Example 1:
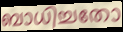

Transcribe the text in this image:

ബാധിച്ചതോ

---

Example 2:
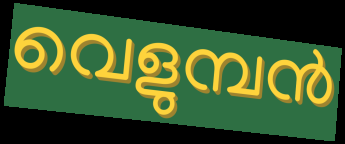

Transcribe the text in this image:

വെളുമ്പൻ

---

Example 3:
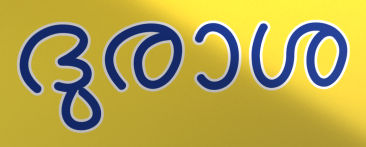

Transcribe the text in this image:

ദുരാശ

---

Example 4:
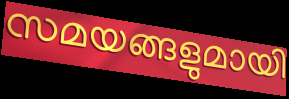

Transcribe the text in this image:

സമയങ്ങളുമായി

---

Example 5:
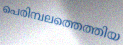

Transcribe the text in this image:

പെരിമ്പലത്തെത്തിയ